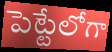
పెట్టేలోగా